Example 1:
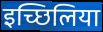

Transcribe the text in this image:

इच्छिलिया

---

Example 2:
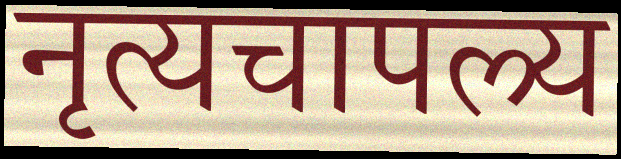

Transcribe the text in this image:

नृत्यचापल्य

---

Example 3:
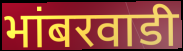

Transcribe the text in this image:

भांबरवाडी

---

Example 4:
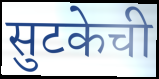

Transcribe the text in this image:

सुटकेची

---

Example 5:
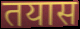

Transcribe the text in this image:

तयास